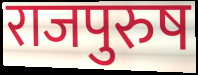
राजपुरुष